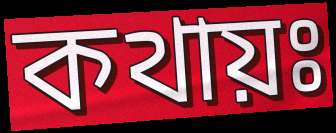
কথায়ঃ